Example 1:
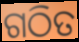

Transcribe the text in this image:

ଗଠିତ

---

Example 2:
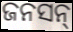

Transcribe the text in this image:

ଜନସନ୍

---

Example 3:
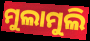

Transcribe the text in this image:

ମୁଲାମୁଲି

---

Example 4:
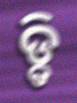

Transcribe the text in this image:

ଡ଼୍ଡି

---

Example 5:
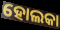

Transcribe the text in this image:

ହୋଲକା